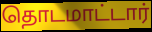
தொடமாட்டார்